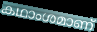
കഥാംശമാണ്